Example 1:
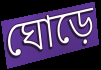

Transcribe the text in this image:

ঘোড়ে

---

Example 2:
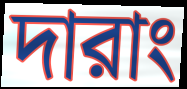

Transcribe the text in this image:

দারাং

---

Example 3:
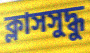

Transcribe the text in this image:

ক্লাসসুদ্ধু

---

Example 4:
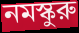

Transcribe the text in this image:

নমস্কুরু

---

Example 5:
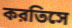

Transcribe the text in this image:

করতিসে